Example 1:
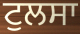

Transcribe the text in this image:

ਟੁਲਸਾ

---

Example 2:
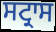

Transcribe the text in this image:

ਸਟ੍ਰਾਸ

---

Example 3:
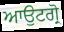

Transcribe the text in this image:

ਆਉਟਗ੍ਰੋ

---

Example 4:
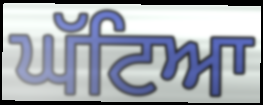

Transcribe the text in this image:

ਘੱਟਿਆ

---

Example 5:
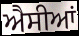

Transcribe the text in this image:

ਐਸੀਆਂ